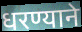
धरण्याने